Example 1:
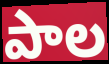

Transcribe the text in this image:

పాల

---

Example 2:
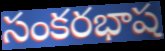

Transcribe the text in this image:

సంకరభాష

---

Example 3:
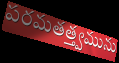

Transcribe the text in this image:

పరమతత్త్వమును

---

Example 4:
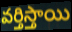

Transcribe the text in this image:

వర్తిస్తాయి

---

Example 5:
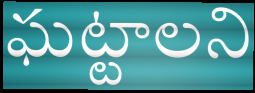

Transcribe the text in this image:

ఘట్టాలని